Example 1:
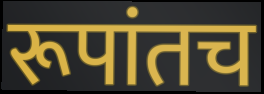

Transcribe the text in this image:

रूपांतच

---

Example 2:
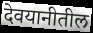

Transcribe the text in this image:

देवयानीतील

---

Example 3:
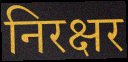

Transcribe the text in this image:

निरक्षर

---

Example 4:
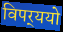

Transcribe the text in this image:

विपर्ययो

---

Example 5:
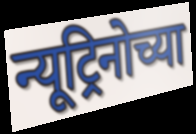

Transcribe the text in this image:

न्यूट्रिनोच्या